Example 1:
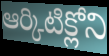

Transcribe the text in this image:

ఆర్కిటిక్లోని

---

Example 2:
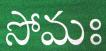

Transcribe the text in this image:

సోమః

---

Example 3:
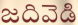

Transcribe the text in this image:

జదివెడి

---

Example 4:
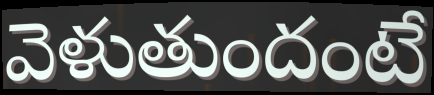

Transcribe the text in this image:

వెళుతుందంటే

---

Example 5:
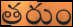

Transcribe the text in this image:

తరుం